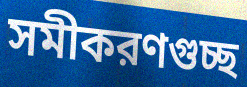
সমীকরণগুচ্ছ